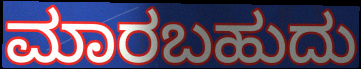
ಮಾರಬಹುದು